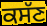
ਕਸੱਣ